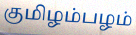
குமிழம்பழம்